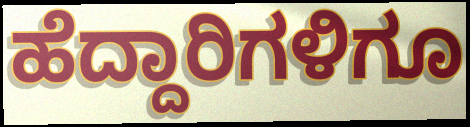
ಹೆದ್ದಾರಿಗಳಿಗೂ